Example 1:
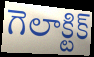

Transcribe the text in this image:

గెలాక్టిక్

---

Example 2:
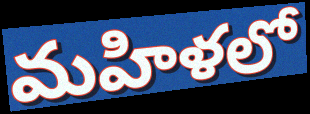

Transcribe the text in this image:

మహిళలో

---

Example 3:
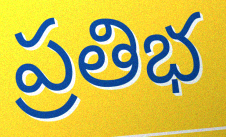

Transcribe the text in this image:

ప్రతిభ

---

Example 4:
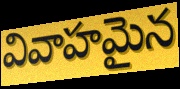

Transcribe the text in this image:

వివాహమైన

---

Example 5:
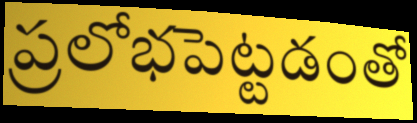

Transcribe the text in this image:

ప్రలోభపెట్టడంతో